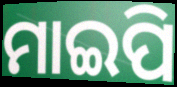
ମାଇପି